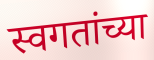
स्वगतांच्या